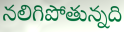
నలిగిపోతున్నది